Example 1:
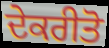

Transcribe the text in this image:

ਦੇਕਰੀਤੋ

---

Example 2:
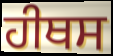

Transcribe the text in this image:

ਹੀਥਸ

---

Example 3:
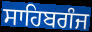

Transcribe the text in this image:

ਸਾਹਿਬਗੰਜ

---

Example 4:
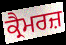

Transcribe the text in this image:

ਕ੍ਰੈਮਰਜ਼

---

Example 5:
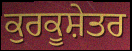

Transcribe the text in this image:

ਕੁਰਕੂਸ਼ੇਤਰ